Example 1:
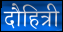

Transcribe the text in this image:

दौहित्री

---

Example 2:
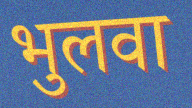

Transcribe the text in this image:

भुलवा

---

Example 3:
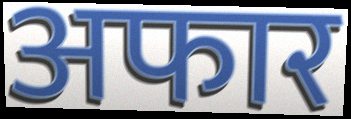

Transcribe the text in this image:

अफार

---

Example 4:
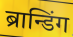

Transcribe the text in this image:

ब्रान्डिंग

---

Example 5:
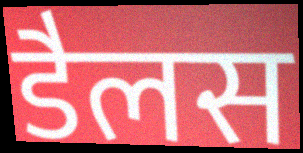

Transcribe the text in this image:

डैलस